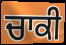
ਚਾਕੀ